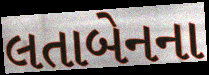
લતાબેનના